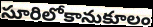
సూరిలోకానుకూలం